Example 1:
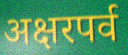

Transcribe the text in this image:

अक्षरपर्व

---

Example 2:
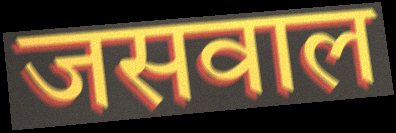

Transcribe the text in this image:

जसवाल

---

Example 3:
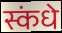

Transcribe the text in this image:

स्कंधे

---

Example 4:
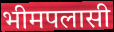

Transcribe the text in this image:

भीमपलासी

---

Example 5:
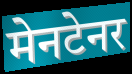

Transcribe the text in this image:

मेनटेनर